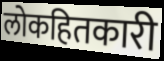
लोकहितकारी